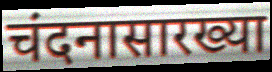
चंदनासारख्या